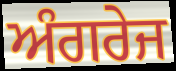
ਅੰਗਰੇਜ